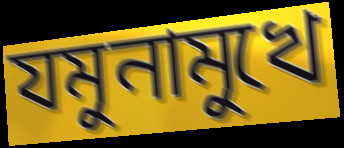
যমুনামুখে